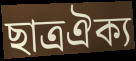
ছাত্রঐক্য